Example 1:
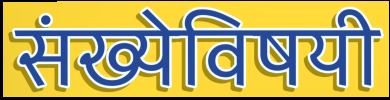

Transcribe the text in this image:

संख्येविषयी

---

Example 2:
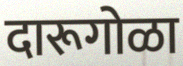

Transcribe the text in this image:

दारूगोळा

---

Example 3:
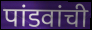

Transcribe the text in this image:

पांडवांची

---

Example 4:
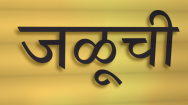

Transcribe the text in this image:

जळूची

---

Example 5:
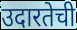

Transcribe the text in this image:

उदारतेची